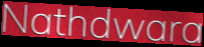
Nathdwara